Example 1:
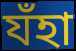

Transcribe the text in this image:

যঁহা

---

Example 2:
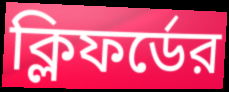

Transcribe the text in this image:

ক্লিফর্ডের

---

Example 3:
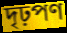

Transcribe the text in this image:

দৃঢ়পণ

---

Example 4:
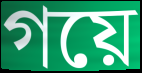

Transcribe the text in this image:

গয়ে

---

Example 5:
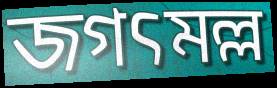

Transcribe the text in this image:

জগৎমল্ল